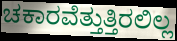
ಚಕಾರವೆತ್ತುತ್ತಿರಲಿಲ್ಲ